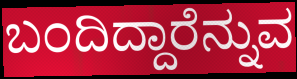
ಬಂದಿದ್ದಾರೆನ್ನುವ